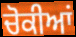
ਚੋਕੀਆਂ